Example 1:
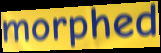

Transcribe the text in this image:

morphed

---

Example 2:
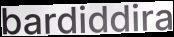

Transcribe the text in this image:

bardiddira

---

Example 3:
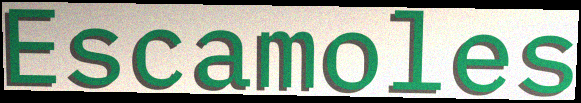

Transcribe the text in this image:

Escamoles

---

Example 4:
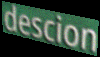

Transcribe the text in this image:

descion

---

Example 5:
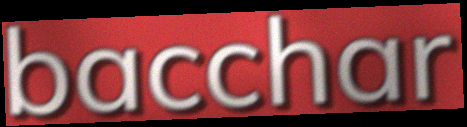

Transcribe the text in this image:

bacchar